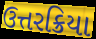
ઉત્તરક્રિયા